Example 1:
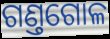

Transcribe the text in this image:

ଗଣ୍ତଗୋଳ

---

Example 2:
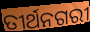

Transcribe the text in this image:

ତୀର୍ଥନଗରୀ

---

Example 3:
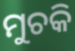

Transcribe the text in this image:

ମୁଚକି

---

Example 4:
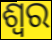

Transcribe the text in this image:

ଶ୍ୱର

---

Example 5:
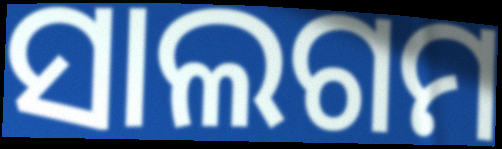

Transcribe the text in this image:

ସାଲଗମ